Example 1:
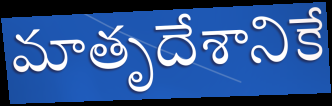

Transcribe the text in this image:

మాతృదేశానికే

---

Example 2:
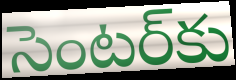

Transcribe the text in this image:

సెంటర్‌కు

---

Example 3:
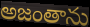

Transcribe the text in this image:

అజంతాను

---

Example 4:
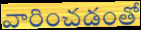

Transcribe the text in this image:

వారించడంతో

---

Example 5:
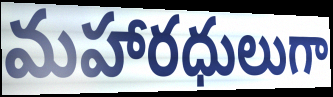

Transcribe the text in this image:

మహారధులుగా